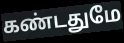
கண்டதுமே